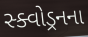
સ્ક્વોડ્રનના